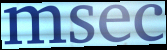
msec